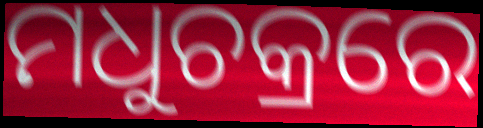
ମଧୁଚକ୍ରରେ